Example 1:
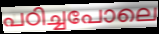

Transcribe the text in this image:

പഠിച്ചപോലെ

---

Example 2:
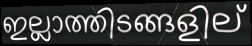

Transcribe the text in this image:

ഇല്ലാത്തിടങ്ങളില്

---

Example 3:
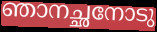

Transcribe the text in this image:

ഞാനച്ഛനോടു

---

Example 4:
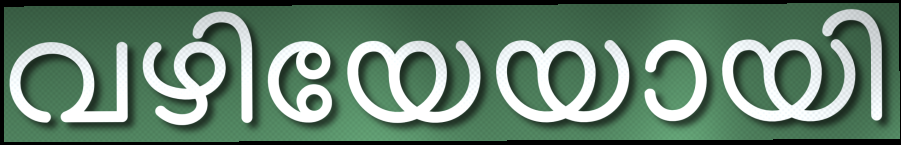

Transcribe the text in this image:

വഴിയേയായി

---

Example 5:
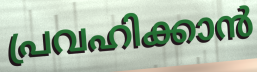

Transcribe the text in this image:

പ്രവഹിക്കാൻ